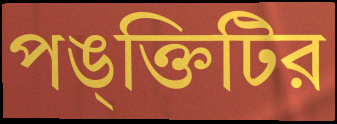
পঙ্‌ক্তিটির